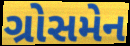
ગ્રોસમેન